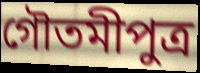
গৌতমীপুত্র